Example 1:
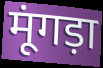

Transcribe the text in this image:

मूंगड़ा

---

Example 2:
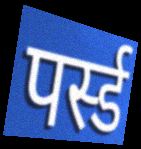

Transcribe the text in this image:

पर्स्ड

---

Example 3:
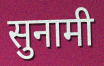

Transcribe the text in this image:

सुनामी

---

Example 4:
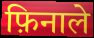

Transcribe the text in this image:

फ़िनाले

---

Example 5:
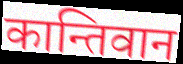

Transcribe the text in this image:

कान्तिवान